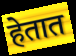
हेतात